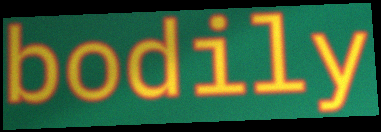
bodily